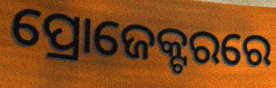
ପ୍ରୋଜେକ୍ଟରରେ